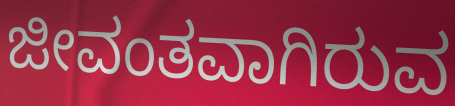
ಜೀವಂತವಾಗಿರುವ